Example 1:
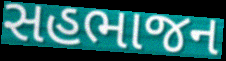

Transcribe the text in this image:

સહભાજન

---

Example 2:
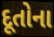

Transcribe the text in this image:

દૂતોના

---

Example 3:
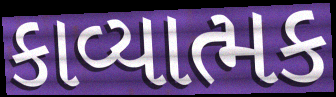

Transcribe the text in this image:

કાવ્યાત્મક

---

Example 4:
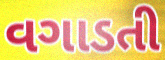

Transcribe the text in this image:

વગાડતી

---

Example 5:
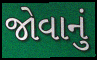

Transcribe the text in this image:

જોવાનું